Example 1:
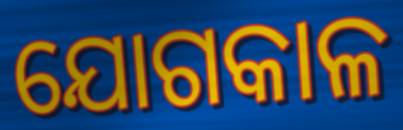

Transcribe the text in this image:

ଯୋଗକାଳ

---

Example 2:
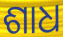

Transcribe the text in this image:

ଶାଧ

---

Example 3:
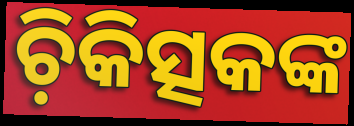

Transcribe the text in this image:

ଚ଼ିକିତ୍ସକଙ୍କ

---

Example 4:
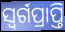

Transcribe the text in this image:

ସ୍ଵର୍ଗପ୍ରାପ୍ତି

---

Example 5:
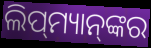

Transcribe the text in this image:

ଲିପ୍‌ମ୍ୟାନ୍‌ଙ୍କର